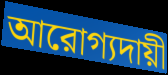
আরোগ্যদায়ী